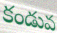
కండువ